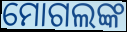
ମୋଗଲଙ୍କ